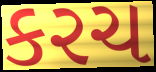
કરચ